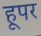
हूपर